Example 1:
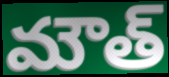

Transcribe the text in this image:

మౌత్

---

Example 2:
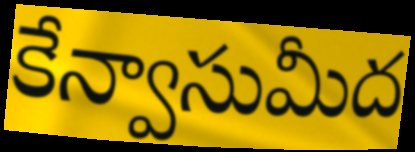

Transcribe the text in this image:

కేన్వాసుమీద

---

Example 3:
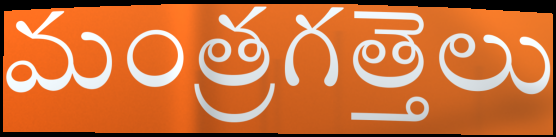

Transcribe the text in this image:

మంత్రగత్తెలు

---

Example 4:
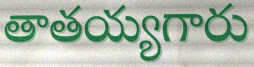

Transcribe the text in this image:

తాతయ్యగారు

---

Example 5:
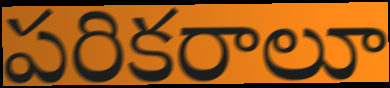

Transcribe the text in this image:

పరికరాలూ